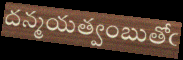
దన్మయత్వంబుతోఁ